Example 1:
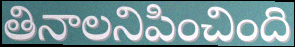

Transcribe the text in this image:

తినాలనిపించింది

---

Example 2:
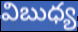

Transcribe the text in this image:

విబుధ్య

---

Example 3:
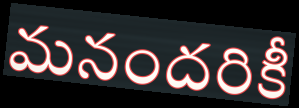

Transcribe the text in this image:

మనందరికీ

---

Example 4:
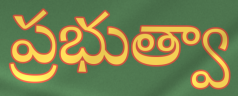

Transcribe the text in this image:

ప్రభుత్వా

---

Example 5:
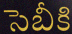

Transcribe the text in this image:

సెబీకి